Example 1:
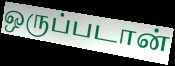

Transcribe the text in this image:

ஒருப்படான்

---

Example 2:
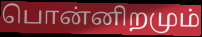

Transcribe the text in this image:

பொன்னிறமும்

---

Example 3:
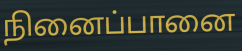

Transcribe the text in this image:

நினைப்பானை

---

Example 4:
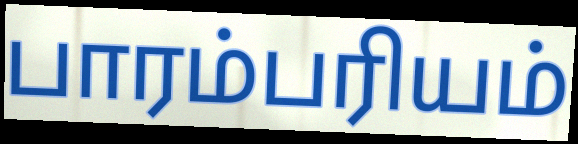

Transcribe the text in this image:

பாரம்பரியம்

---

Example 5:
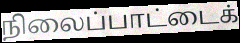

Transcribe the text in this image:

நிலைப்பாட்டைக்